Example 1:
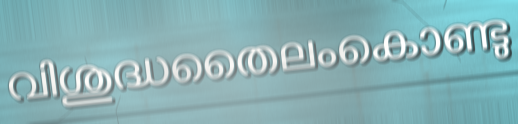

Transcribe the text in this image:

വിശുദ്ധതൈലംകൊണ്ടു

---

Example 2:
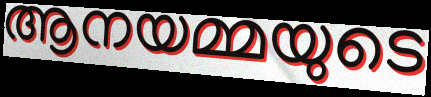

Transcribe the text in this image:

ആനയമ്മയുടെ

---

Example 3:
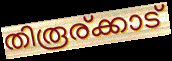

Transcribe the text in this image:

തിരൂര്ക്കാട്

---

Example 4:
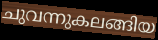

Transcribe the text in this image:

ചുവന്നുകലങ്ങിയ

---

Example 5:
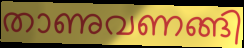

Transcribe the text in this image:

താണുവണങ്ങി